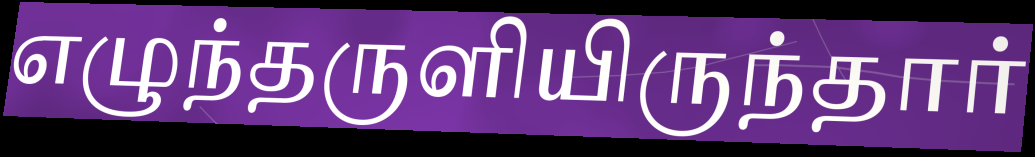
எழுந்தருளியிருந்தார்